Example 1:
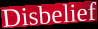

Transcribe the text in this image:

Disbelief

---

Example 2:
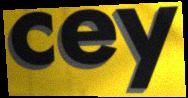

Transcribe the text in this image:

cey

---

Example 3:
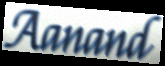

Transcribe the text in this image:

Aanand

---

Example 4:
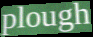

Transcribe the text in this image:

plough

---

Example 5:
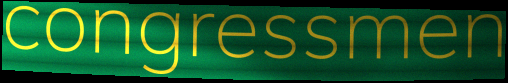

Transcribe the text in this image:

congressmen